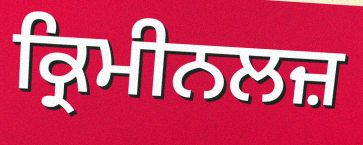
ਕ੍ਰਿਮੀਨਲਜ਼